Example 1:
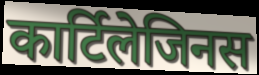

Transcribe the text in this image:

कार्टिलेजिनस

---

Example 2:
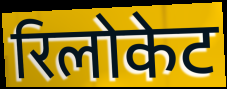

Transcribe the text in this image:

रिलोकेट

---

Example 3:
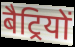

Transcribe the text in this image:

बैट्रियों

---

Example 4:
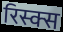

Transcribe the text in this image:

रिस्क्स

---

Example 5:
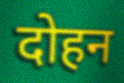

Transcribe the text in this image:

दोहन